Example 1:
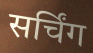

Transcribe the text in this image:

सर्चिंग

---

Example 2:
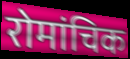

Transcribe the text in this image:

रोमांचिक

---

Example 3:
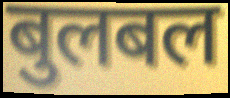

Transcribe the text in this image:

बुलबल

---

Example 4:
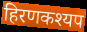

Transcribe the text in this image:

हिरणकश्यप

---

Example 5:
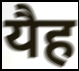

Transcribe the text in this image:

यैह